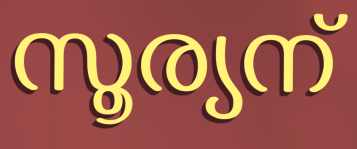
സൂര്യന്